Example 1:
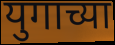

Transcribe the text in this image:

युगाच्या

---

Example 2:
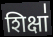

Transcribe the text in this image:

शिक्षा॑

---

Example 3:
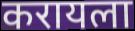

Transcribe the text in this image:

करायला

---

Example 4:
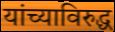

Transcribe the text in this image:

यांच्याविरुद्ध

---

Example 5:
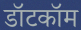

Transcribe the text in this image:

डॉटकॉम